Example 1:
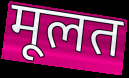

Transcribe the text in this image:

मूलत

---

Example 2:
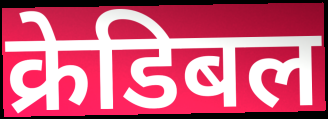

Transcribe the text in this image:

क्रेडिबल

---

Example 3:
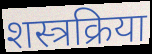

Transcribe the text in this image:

शस्त्रक्रिया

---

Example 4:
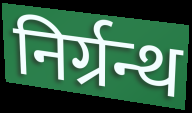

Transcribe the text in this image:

निर्ग्रन्थ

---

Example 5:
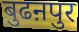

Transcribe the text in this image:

बुढऩपुर